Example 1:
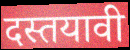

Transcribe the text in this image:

दस्तयावी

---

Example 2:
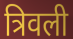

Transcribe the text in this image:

त्रिवली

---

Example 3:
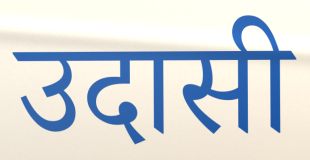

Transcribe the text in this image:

उदासी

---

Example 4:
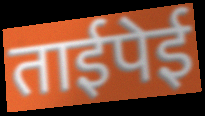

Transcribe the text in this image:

ताईपेई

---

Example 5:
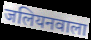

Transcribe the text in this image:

जलियनवाला